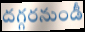
దగ్గరనుండీ